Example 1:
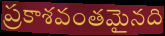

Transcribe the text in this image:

ప్రకాశవంతమైనది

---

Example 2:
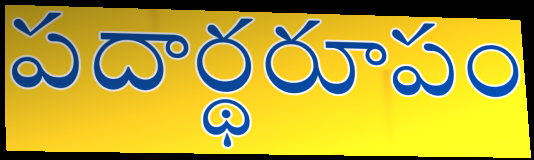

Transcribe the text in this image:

పదార్థరూపం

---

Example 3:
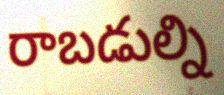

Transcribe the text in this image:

రాబడుల్ని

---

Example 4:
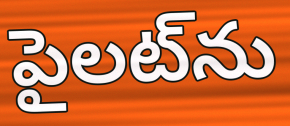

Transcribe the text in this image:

పైలట్‌ను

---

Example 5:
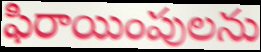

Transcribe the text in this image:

ఫిరాయింపులను